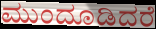
ಮುಂದೂಡಿದರೆ